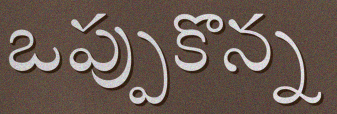
ఒప్పుకొన్న